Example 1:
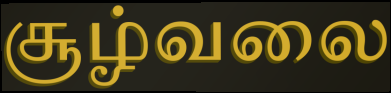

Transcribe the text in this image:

சூழ்வலை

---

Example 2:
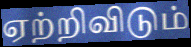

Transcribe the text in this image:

ஏற்றிவிடும்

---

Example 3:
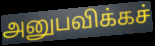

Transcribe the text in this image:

அனுபவிக்கச்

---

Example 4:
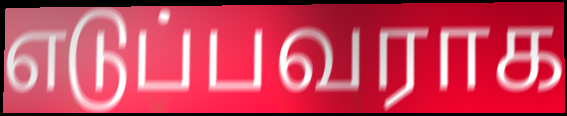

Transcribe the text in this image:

எடுப்பவராக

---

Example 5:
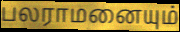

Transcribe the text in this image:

பலராமனையும்